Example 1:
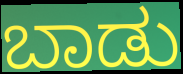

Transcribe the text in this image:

ಬಾಡು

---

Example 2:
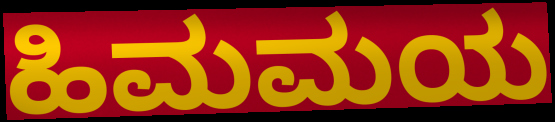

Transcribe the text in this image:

ಹಿಮಮಯ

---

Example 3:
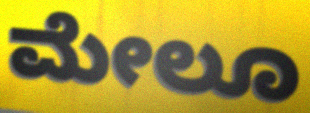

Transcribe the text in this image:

ಮೇಲೂ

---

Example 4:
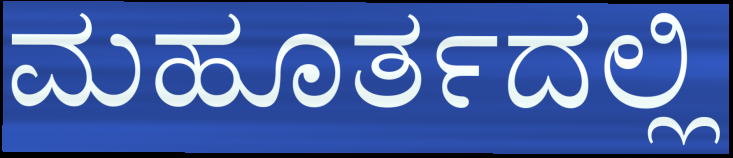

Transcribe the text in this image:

ಮಹೂರ್ತದಲ್ಲಿ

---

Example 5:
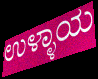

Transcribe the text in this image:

ಉಳ್ಳಾಯ